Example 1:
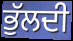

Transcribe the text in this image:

ਭੁੱਲਦੀ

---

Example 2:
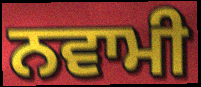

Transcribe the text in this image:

ਨਵਾਮੀ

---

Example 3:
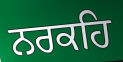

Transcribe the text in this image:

ਨਰਕਹਿ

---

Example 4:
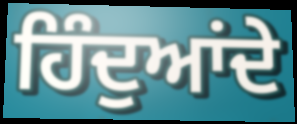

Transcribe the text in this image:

ਹਿੰਦੁਆਂਦੇ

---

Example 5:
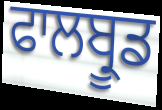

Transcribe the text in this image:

ਫਾਲਬ੍ਰੂਡ